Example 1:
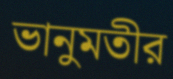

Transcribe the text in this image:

ভানুমতীর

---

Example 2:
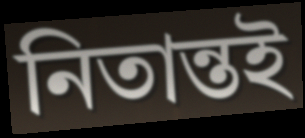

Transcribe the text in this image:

নিতান্তই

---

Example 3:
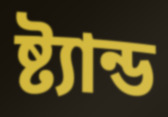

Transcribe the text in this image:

ষ্ট্যান্ড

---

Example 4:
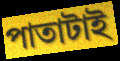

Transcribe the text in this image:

পাতাটাই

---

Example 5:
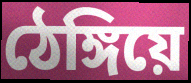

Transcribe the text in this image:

ঠেঙ্গিয়ে